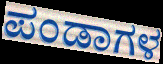
ಪಂಡಾಗಳ